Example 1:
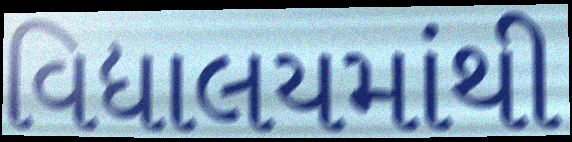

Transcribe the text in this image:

વિદ્યાલયમાંથી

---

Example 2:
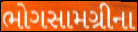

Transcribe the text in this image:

ભોગસામગ્રીના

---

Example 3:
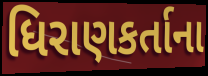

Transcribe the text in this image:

ધિરાણકર્તાના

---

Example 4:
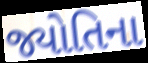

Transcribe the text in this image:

જ્યોતિના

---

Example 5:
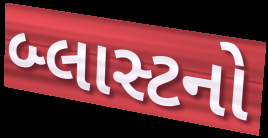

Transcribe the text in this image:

બ્લાસ્ટનો